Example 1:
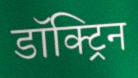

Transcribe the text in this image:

डॉक्ट्रिन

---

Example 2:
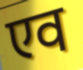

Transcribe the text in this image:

एव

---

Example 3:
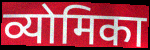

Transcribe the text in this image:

व्योमिका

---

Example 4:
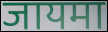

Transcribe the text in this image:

जायमा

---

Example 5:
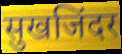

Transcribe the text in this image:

सुखजिंदर